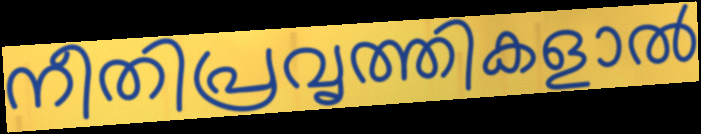
നീതിപ്രവൃത്തികളാൽ